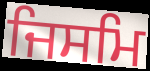
ਜਿਸਮਿ